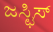
ಜಸ್ಟಿಸ್